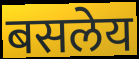
बसलेय